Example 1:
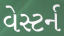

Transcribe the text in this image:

વેસ્ટર્ન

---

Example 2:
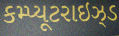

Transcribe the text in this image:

કમ્પ્યૂટરાઇઝ્ડ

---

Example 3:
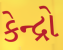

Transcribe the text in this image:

કેન્દ્રો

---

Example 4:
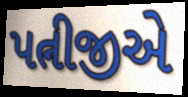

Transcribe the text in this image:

પત્નીજીએ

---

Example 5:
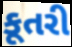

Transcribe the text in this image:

કૂતરી